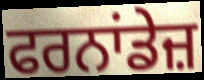
ਫਰਨਾਂਡੇਜ਼